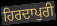
ਹਿਰਦਾਪੁਰੀ